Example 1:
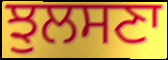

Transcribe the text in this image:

ਝੁਲਸਣਾ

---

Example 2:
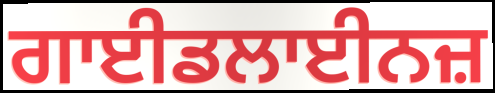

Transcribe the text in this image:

ਗਾਈਡਲਾਈਨਜ਼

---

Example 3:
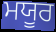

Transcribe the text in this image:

ਮਯੂਰ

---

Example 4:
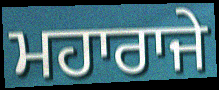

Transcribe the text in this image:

ਮਹਾਰਾਜੇ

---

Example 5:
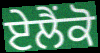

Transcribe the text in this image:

ਏਲੈਂਕੋ